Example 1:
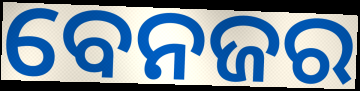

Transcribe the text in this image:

ବେନଜର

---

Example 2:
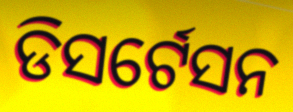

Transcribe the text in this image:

ଡିସର୍ଟେସନ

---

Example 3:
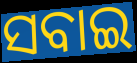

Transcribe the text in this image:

ସବାଇ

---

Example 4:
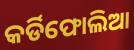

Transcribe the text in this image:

କର୍ଡିଫୋଲିଆ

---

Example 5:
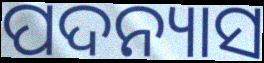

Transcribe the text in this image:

ପଦନ୍ୟାସ